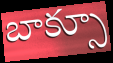
బాక్సూ